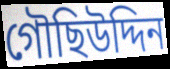
গৌছিউদ্দিন